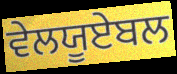
ਵੇਲਯੂਏਬਲ